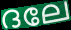
ദലേ